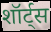
शॉर्ट्स